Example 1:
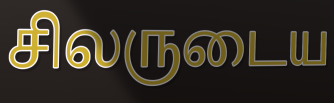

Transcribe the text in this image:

சிலருடைய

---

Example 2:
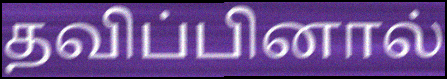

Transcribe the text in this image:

தவிப்பினால்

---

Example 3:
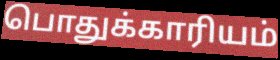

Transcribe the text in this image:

பொதுக்காரியம்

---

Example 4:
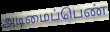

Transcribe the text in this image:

அடிமைப்பெண்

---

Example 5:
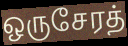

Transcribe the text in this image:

ஒருசேரத்